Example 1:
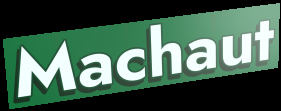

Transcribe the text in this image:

Machaut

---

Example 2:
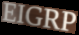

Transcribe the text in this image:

EIGRP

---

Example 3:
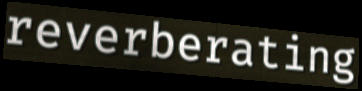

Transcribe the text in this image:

reverberating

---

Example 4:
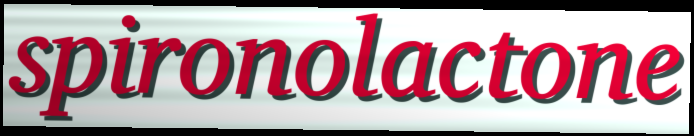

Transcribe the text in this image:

spironolactone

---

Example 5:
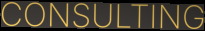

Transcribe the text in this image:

CONSULTING